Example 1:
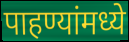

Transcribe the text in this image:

पाहण्यांमध्ये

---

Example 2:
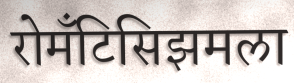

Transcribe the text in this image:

रोमँटिसिझमला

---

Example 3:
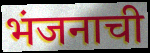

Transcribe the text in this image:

भंजनाची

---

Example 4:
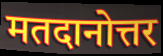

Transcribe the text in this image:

मतदानोत्तर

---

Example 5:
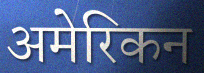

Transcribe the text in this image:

अमेरिकन